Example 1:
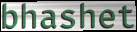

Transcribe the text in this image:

bhashet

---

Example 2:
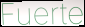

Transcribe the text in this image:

Fuerte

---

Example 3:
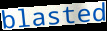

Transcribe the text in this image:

blasted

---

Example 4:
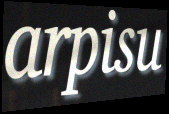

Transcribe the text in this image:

arpisu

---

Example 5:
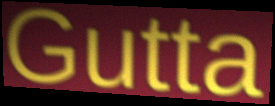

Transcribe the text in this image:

Gutta